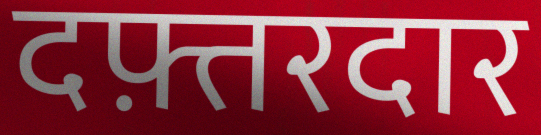
दफ़्तरदार